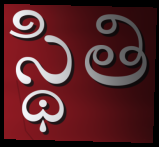
స్థితి